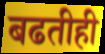
बढतीही